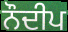
ਨੌਦੀਪ